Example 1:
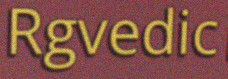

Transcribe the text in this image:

Rgvedic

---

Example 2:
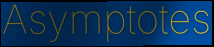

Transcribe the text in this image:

Asymptotes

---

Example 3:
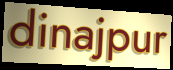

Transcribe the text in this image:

dinajpur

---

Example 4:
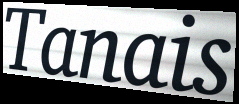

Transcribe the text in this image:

Tanais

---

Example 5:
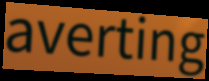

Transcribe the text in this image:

averting